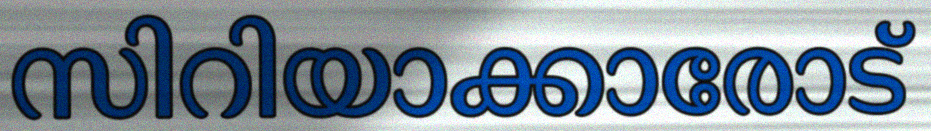
സിറിയാക്കാരോട്